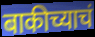
बाकीच्याचं